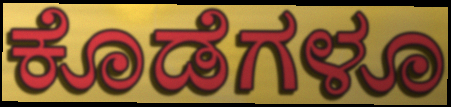
ಕೊಡೆಗಳೂ